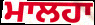
ਮਾਲਹਾ